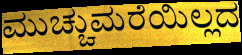
ಮುಚ್ಚುಮರೆಯಿಲ್ಲದ